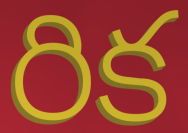
రిక